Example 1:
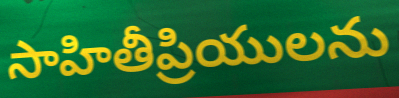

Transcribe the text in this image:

సాహితీప్రియులను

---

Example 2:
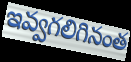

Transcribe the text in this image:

ఇవ్వగలిగినంత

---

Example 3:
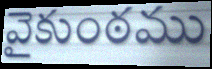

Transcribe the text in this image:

వైకుంఠము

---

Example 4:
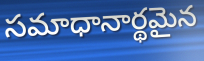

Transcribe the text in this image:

సమాధానార్థమైన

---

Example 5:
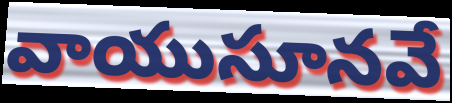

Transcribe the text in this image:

వాయుసూనవే